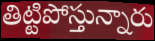
తిట్టిపోస్తున్నారు